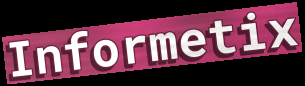
Informetix